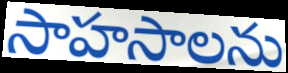
సాహసాలను